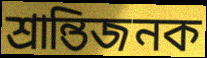
শ্রান্তিজনক